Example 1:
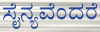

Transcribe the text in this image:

ಸೈನ್ಯವೆಂದರೆ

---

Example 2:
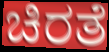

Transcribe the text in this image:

ಚಿರತೆ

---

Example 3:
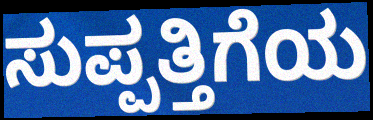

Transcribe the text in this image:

ಸುಪ್ಪತ್ತಿಗೆಯ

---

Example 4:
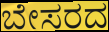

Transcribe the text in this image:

ಬೇಸರದ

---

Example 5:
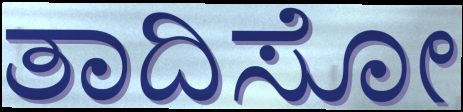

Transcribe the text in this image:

ತಾದಿಸೋ